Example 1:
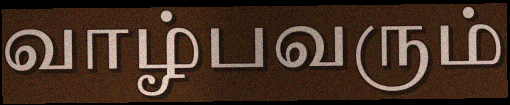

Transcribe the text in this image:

வாழ்பவரும்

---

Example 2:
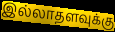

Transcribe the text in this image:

இல்லாதளவுக்கு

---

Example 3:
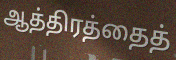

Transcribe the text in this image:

ஆத்திரத்தைத்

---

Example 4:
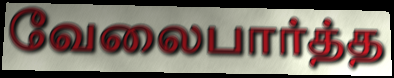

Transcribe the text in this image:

வேலைபார்த்த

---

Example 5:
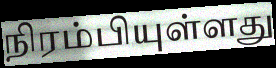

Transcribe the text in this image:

நிரம்பியுள்ளது